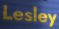
Lesley